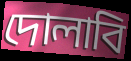
দোলাবি